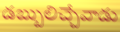
డబ్బులిచ్చేవాడు